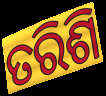
ତରିଶି